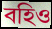
বহিও